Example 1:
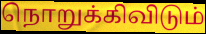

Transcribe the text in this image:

நொறுக்கிவிடும்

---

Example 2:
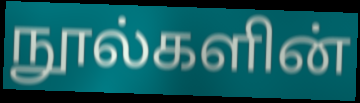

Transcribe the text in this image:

நூல்களின்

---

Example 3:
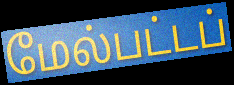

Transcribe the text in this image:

மேல்பட்டப்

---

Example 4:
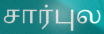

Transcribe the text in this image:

சார்புல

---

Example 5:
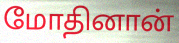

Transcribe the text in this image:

மோதினான்